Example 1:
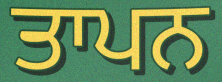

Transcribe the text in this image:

ਤਾਪਨ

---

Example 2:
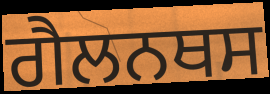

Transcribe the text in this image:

ਗੈਲਨਥਸ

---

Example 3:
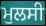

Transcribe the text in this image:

ਮੁਲਸੀ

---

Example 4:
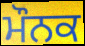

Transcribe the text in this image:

ਮੌਨਕ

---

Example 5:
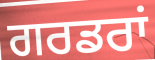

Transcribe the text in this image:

ਗਰਡਰਾਂ